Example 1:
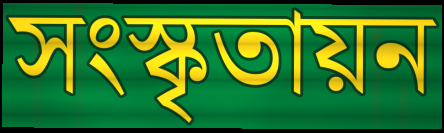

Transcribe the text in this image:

সংস্কৃতায়ন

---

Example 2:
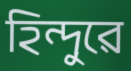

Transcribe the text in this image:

হিন্দুৱে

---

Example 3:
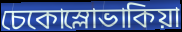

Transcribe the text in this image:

চেকোস্লোভাকিয়া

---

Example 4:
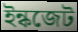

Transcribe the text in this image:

ইন্কজেট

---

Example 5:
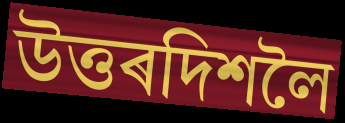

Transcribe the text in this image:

উত্তৰদিশলৈ